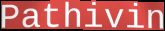
Pathivin